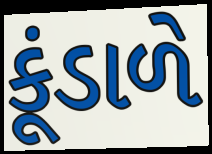
કૂંડાળે